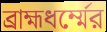
ব্রাহ্মধর্ম্মের